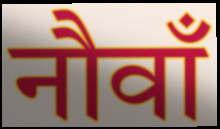
नौवाँ